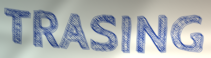
TRASING